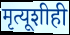
मृत्यूशीही